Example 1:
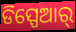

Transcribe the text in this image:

ଡିସ୍ପେଆର୍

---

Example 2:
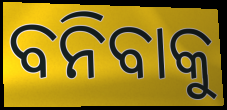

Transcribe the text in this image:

ବନିବାକୁ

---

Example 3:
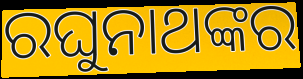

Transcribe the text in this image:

ରଘୁନାଥଙ୍କର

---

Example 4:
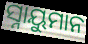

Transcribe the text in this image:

ସ୍ନାୟୁମାନ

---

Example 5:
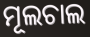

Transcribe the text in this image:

ମୂଲଚାଲ